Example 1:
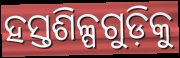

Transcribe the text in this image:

ହସ୍ତଶିଳ୍ପଗୁଡ଼ିକୁ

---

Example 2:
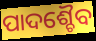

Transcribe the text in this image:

ପାଦଶ୍ଚୈବ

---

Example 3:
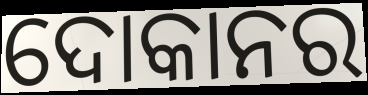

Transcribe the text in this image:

ଦୋକାନର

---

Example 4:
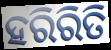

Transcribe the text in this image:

ହରିରିତି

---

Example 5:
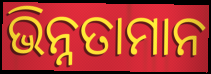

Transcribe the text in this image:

ଭିନ୍ନତାମାନ